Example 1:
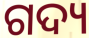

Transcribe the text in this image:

ଗଦ୍ୟ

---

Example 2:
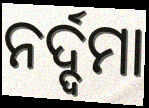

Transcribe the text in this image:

ନର୍ଦ୍ଦମା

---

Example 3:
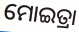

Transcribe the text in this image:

ମୋଇତ୍ରା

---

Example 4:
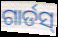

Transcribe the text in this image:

ଗାର୍ଡସ୍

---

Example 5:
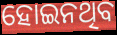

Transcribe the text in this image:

ହୋଇନଥିବ